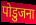
पोडुजना